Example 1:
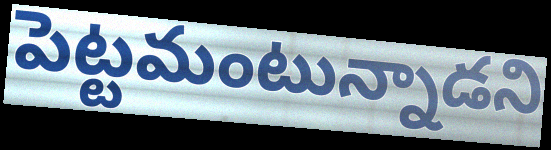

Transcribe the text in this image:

పెట్టమంటున్నాడని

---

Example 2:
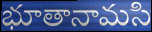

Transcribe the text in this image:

భూతానామసి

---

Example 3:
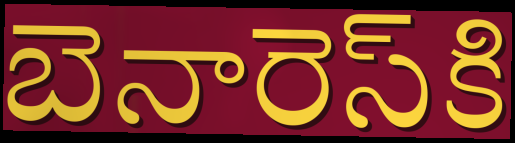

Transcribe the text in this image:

బెనారెస్‌కి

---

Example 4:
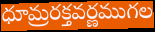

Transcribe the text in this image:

ధూమ్రరక్తవర్ణముగల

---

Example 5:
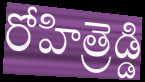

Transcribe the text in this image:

రోహిత్రెడ్డి